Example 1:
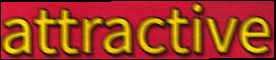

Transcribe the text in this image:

attractive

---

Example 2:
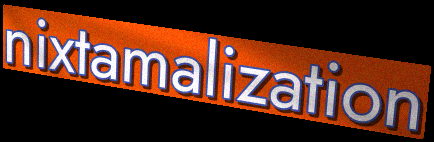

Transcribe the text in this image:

nixtamalization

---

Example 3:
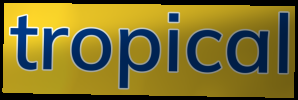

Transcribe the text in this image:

tropical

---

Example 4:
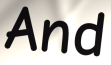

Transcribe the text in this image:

And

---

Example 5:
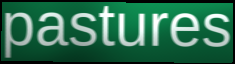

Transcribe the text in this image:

pastures